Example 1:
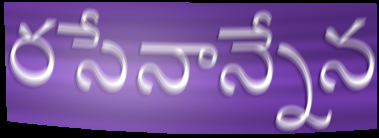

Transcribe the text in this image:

రసేనాన్నేన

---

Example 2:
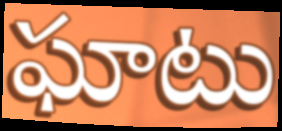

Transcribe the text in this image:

ఘాటు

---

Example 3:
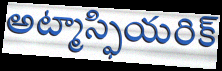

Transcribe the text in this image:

అట్మాస్ఫియరిక్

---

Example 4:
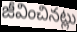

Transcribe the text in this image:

జీవించినట్లు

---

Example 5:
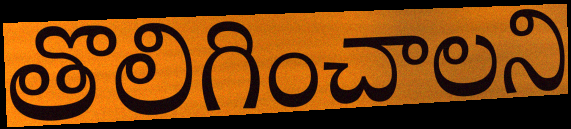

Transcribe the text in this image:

తొలిగించాలని